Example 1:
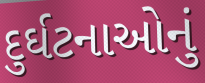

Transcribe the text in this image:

દુર્ઘટનાઓનું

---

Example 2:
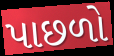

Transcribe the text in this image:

પાછળો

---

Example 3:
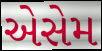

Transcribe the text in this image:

એસેમ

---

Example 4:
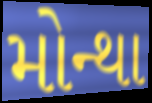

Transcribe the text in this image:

મોન્થા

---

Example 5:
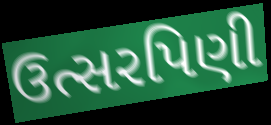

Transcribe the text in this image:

ઉત્સરપિણી